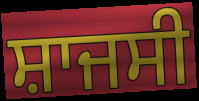
ਸ਼ਾਜਸੀ